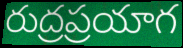
రుద్రప్రయాగ